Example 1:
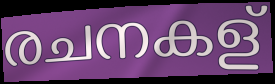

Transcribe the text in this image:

രചനകള്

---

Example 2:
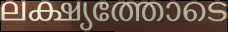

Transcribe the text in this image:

ലക്ഷ്യത്തോടെ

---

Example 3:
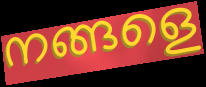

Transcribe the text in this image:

നങ്ങളെ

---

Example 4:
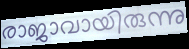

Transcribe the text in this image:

രാജാവായിരുന്നു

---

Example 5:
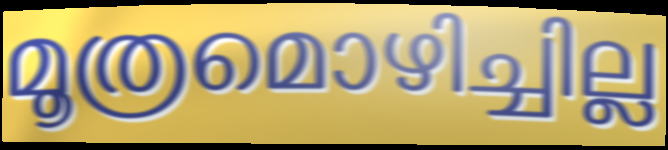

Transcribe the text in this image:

മൂത്രമൊഴിച്ചില്ല